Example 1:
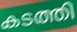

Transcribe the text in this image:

കടത്തി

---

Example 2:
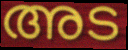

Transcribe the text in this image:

അട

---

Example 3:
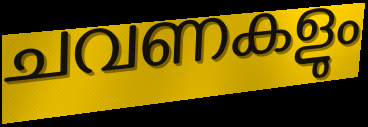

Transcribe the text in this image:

ചവണകളും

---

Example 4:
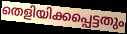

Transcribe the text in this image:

തെളിയിക്കപ്പെട്ടതും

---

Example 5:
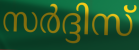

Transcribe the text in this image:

സർദ്ദിസ്